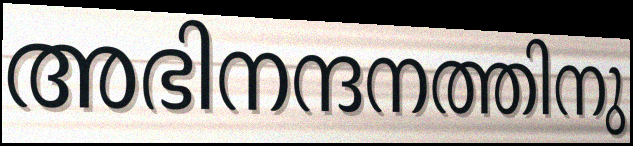
അഭിനന്ദനത്തിനു